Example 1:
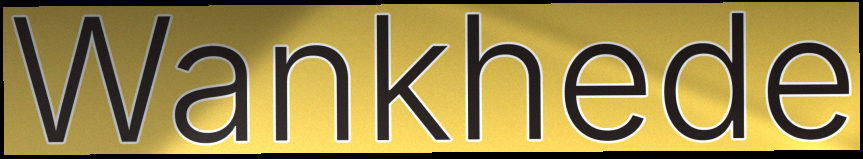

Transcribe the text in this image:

Wankhede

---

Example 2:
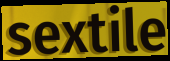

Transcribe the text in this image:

sextile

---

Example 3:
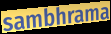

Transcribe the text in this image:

sambhrama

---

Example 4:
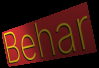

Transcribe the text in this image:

Behar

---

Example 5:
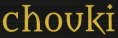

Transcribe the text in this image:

chouki